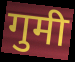
गुमी